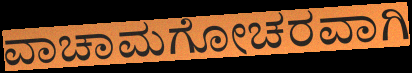
ವಾಚಾಮಗೋಚರವಾಗಿ